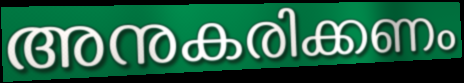
അനുകരിക്കണം